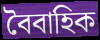
বৈবাহিক